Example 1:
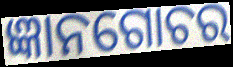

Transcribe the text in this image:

ଜ୍ଞାନଗୋଚର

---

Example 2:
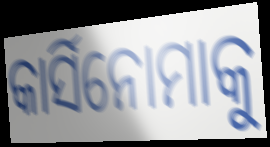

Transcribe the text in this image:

କାର୍ସିନୋମାକୁ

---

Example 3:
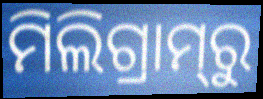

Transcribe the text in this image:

ମିଲିଗ୍ରାମ୍‌ରୁ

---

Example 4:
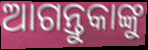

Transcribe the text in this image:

ଆଗନ୍ତୁକାଙ୍କୁ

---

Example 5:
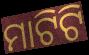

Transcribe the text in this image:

ମାଟିଟି